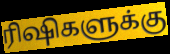
ரிஷிகளுக்கு